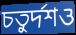
চতুর্দশও